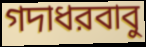
গদাধরবাবু